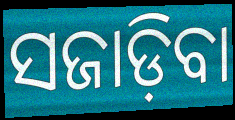
ସଜାଡ଼ିବା